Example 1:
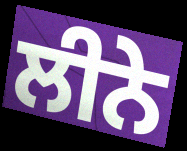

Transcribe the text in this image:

ਲੀਨੇ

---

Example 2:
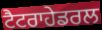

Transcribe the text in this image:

ਟੈਟਰਾਹੇਡਰਲ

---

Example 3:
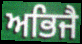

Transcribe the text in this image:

ਅਭਿਜੈ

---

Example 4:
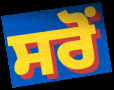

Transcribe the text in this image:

ਸਰੋਂ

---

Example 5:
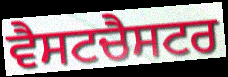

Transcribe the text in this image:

ਵੈਸਟਚੈਸਟਰ